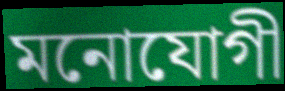
মনোযোগী